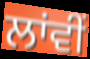
ਲਾਂਵੀਂ